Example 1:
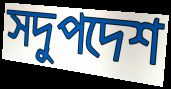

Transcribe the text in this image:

সদুপদেশ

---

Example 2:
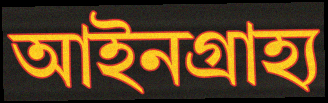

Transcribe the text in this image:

আইনগ্রাহ্য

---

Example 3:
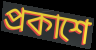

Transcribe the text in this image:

প্রকাশে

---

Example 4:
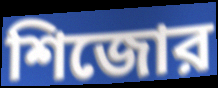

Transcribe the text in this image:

শিজোর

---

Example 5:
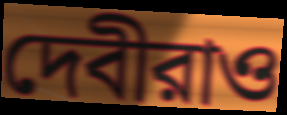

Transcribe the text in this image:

দেবীরাও